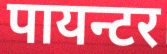
पायन्टर